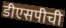
डीएसपीची